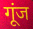
गूंज